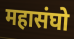
महासंघो